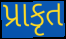
પ્રાકૃત